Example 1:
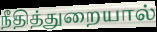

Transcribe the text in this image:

நீதித்துறையால்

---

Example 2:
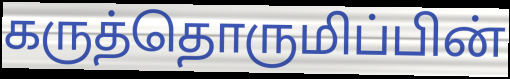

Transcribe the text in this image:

கருத்தொருமிப்பின்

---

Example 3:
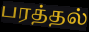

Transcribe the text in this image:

பரத்தல்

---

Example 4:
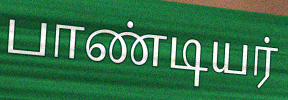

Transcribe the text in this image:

பாண்டியர்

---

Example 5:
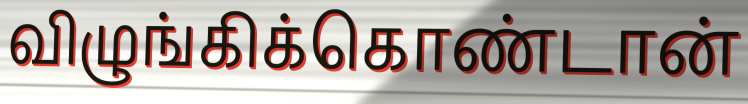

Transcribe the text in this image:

விழுங்கிக்கொண்டான்